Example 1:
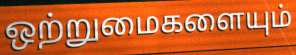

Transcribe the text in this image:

ஒற்றுமைகளையும்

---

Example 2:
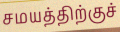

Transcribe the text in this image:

சமயத்திற்குச்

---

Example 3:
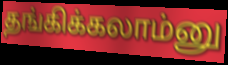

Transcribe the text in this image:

தங்கிக்கலாம்னு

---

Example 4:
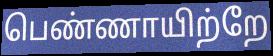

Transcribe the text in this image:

பெண்ணாயிற்றே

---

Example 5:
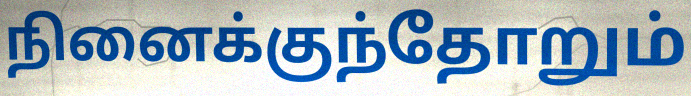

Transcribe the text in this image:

நினைக்குந்தோறும்